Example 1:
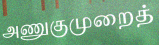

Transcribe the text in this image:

அணுகுமுறைத்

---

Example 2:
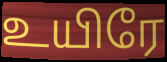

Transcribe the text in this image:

உயிரே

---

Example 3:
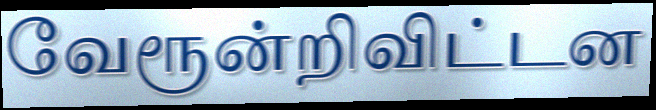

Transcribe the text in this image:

வேரூன்றிவிட்டன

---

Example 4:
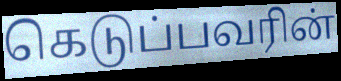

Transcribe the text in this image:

கெடுப்பவரின்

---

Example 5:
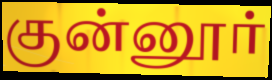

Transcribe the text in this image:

குன்னூர்